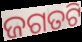
ଜଗତଟି